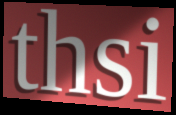
thsi